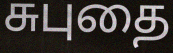
சுபுதை